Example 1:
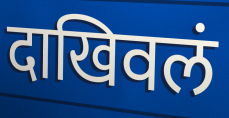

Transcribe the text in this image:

दाखिवलं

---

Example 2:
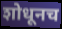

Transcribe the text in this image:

शोधूनच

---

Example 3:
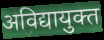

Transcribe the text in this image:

अविद्यायुक्त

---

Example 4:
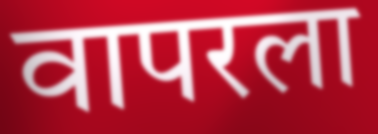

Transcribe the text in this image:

वापरला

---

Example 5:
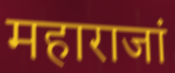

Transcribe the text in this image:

महाराजां